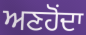
ਅਣਹੋਂਦਾ